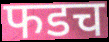
फडच